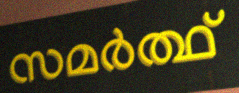
സമർത്ഥ്